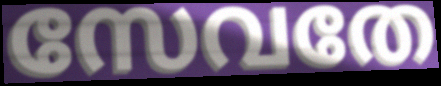
സേവതേ